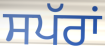
ਸਪੱਰਾਂ